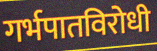
गर्भपातविरोधी